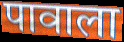
पावाला